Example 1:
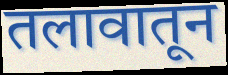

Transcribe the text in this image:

तलावातून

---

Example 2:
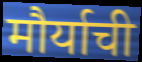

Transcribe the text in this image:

मौर्याची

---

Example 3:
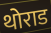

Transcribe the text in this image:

थोराड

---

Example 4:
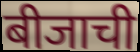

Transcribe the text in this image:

बीजाची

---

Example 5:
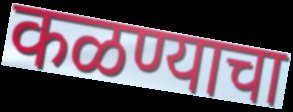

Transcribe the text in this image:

कळण्याचा